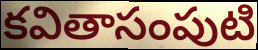
కవితాసంపుటి